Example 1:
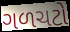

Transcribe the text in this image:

ગળચટો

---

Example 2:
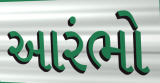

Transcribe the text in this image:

આરંભો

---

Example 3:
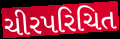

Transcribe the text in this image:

ચીરપરિચિત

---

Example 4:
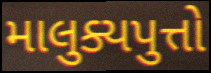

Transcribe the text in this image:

માલુક્યપુત્તો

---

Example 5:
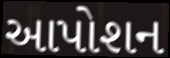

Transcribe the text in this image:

આપોશન